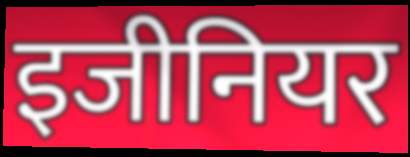
इजीनियर